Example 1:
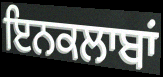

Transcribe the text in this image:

ਇਨਕਲਾਬਾਂ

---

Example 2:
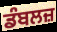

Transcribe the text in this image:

ਡੰਬਲਜ਼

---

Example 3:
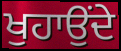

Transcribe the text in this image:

ਖੁਹਾਉਂਦੇ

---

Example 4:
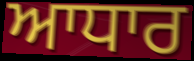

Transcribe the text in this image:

ਆਧਾਰ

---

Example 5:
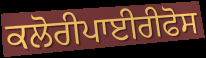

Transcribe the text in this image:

ਕਲੋਰੀਪਾਈਰੀਫੋਸ